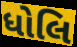
ધોલિ